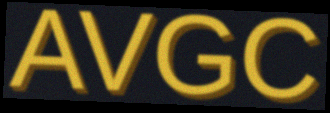
AVGC